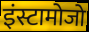
इंस्टामोजो